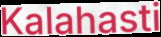
Kalahasti